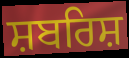
ਸ਼ਬਰਿਸ਼